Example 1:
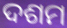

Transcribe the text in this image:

ଦଶମ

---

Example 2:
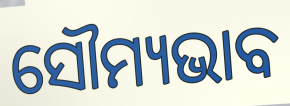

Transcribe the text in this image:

ସୌମ୍ୟଭାବ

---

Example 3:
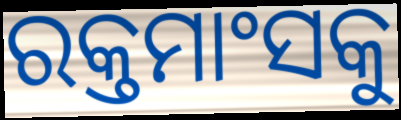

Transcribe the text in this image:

ରକ୍ତମାଂସକୁ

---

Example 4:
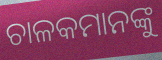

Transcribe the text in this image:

ଚାଳକମାନଙ୍କୁ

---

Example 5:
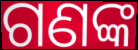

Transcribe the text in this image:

ଗଣଙ୍କ